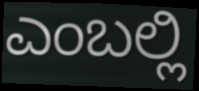
ಎಂಬಲ್ಲಿ